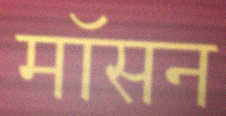
मॉसन